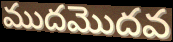
ముదమొదవ